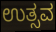
ಉತ್ಸವ